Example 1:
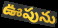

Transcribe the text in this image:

ఊపును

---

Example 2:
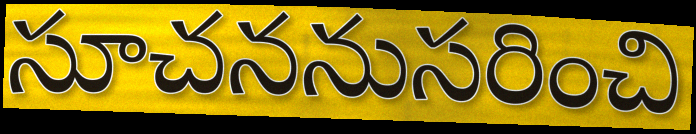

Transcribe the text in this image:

సూచననుసరించి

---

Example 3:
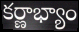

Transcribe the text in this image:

కర్ణాభ్యాం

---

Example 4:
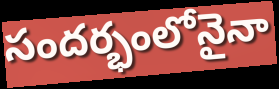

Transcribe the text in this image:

సందర్భంలోనైనా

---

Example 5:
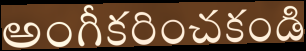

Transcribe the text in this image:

అంగీకరించకండి